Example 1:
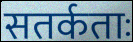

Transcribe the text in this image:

सतर्कताः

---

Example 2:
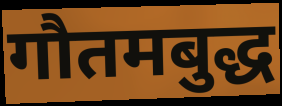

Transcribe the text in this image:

गौतमबुद्ध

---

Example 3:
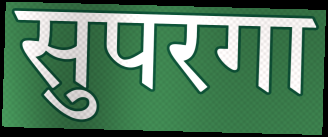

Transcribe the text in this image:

सुपरगा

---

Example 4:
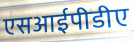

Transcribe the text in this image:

एसआईपीडीए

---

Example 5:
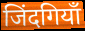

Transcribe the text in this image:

जिंदगियाँ